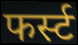
फर्स्‍ट